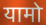
यामो